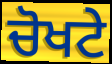
ਚੋਖਟੇ